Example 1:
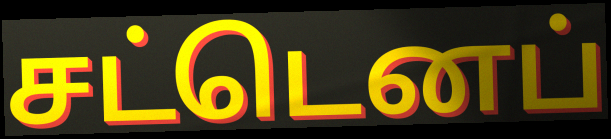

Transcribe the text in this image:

சட்டெனப்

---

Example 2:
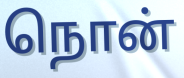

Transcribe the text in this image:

நொன்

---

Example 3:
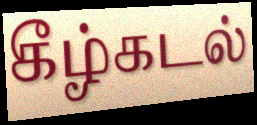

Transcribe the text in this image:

கீழ்கடல்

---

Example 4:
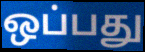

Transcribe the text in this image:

ஒப்பது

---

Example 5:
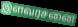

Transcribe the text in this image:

இளவரசனை